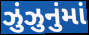
ઝુંઝુનુંમાં